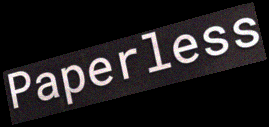
Paperless